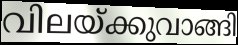
വിലയ്ക്കുവാങ്ങി